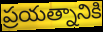
ప్రయత్నానికి